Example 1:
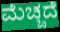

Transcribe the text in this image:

ಮೆಚ್ಚದೆ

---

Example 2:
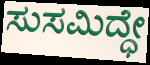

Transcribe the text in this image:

ಸುಸಮಿದ್ಧೇ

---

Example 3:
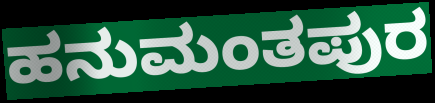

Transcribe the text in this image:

ಹನುಮಂತಪುರ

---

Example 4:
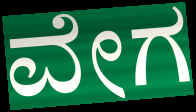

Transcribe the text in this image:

ವೇಗ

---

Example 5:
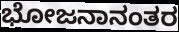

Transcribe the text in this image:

ಭೋಜನಾನಂತರ